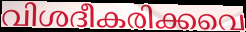
വിശദീകരിക്കവെ